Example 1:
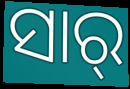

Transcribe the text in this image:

ସାର୍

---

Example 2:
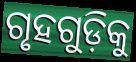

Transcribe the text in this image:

ଗୃହଗୁଡ଼ିକୁ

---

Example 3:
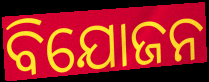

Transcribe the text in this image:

ବିଯୋଜନ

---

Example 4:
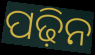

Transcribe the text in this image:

ପଢ଼ିନ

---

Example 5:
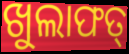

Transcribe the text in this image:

ଖୁଲାଫତ୍